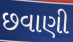
છવાણી